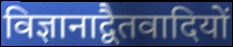
विज्ञानाद्वैतवादियों